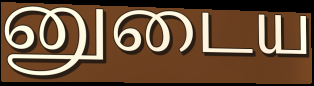
னுடைய